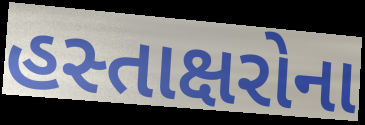
હસ્તાક્ષરોના